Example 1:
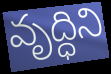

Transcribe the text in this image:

వృద్ధిని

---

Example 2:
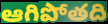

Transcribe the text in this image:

ఆగిపోతది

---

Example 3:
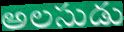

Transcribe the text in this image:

అలసుడు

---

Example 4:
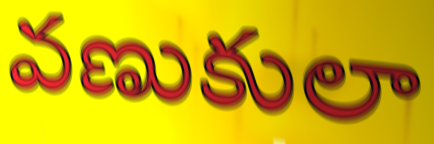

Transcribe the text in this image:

వణుకులా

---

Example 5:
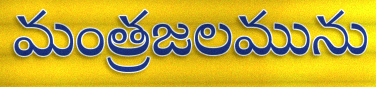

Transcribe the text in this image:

మంత్రజలమును